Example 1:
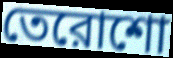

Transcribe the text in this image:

তেরোশো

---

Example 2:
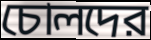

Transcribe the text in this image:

চোলদের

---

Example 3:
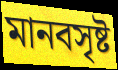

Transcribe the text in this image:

মানবসৃষ্ট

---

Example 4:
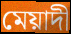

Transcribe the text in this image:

মেয়াদী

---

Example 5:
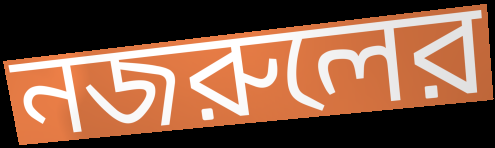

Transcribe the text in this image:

নজরুলের